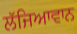
ਲੱਜਿਆਵਾਨ